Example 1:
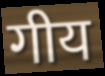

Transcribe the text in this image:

गीय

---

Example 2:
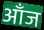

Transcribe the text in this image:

आँज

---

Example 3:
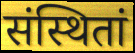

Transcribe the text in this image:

संस्थितां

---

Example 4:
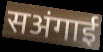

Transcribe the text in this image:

सअंगाई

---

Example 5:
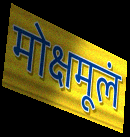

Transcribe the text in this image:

मोक्षमूलं